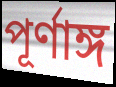
পূর্ণাঙ্গ